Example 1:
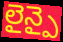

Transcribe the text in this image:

లైన్పై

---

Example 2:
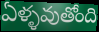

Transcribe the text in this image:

ఏళ్ళవుతోంది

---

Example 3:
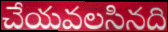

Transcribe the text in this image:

చేయవలసినది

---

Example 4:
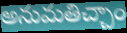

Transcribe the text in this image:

అనుమతిచ్చాం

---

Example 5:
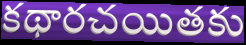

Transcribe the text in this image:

కథారచయితకు